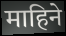
माहिने